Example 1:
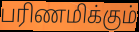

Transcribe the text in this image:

பரிணமிக்கும்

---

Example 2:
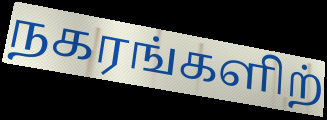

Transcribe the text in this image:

நகரங்களிற்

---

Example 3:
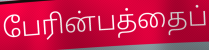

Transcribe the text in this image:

பேரின்பத்தைப்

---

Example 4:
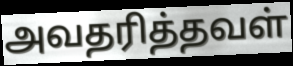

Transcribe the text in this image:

அவதரித்தவள்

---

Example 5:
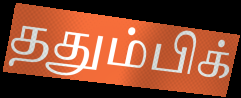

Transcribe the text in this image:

ததும்பிக்